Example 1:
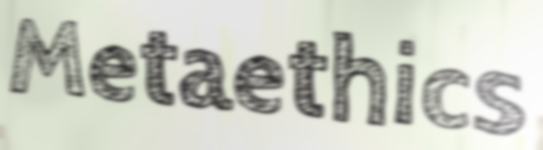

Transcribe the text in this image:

Metaethics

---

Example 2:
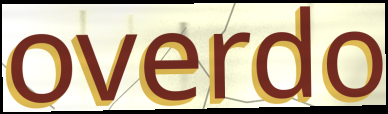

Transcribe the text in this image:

overdo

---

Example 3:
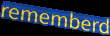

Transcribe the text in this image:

rememberd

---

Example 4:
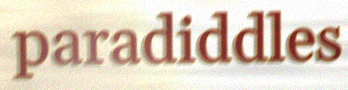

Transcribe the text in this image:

paradiddles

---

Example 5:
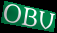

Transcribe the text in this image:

OBU